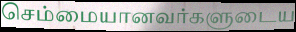
செம்மையானவர்களுடைய